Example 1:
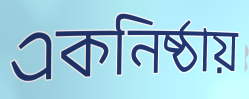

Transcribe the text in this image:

একনিষ্ঠায়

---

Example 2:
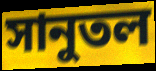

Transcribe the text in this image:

সানুতল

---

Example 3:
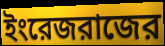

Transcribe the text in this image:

ইংরেজরাজের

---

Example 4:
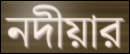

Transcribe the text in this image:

নদীয়ার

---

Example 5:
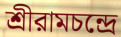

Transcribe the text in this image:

শ্রীরামচন্দ্রে